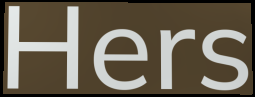
Hers